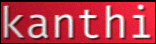
kanthi